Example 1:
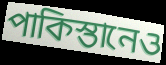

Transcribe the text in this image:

পাকিস্তানেও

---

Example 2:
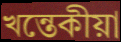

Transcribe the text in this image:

খন্তেকীয়া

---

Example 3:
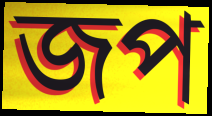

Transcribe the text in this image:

জপ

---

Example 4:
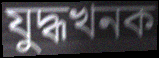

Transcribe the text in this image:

যুদ্ধখনক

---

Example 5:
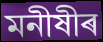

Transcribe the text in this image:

মনীষীৰ